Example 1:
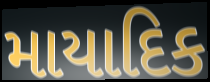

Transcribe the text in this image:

માયાદિક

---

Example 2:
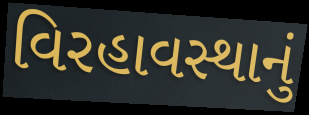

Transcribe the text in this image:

વિરહાવસ્થાનું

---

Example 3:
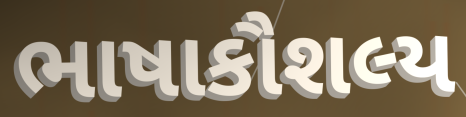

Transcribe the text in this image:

ભાષાકૌશલ્ય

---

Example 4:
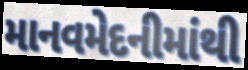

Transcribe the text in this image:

માનવમેદનીમાંથી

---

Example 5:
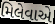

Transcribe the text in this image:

મિલેવાએ